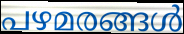
പഴമരങ്ങൾ